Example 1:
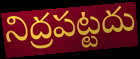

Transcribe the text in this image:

నిద్రపట్టదు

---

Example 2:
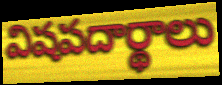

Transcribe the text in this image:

విషపదార్థాలు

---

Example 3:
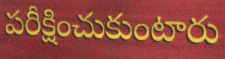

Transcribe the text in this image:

పరీక్షించుకుంటారు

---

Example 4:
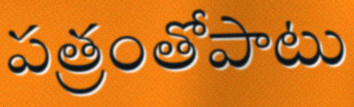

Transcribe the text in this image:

పత్రంతోపాటు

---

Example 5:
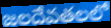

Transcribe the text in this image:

జలదేవతలలో